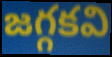
జగ్గకవి